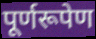
पूर्णरूपेण